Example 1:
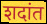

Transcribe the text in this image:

शदांत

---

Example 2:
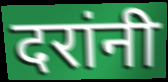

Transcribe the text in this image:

दरांनी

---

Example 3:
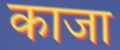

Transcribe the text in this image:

काजा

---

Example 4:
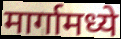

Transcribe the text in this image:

मार्गामध्ये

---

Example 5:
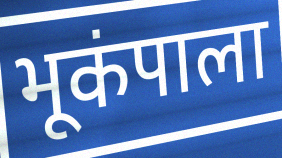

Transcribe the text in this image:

भूकंपाला